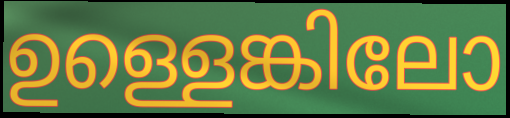
ഉള്ളെങ്കിലോ